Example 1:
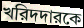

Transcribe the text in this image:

খরিদদারকে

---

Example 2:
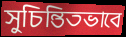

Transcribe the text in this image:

সুচিন্তিতভাবে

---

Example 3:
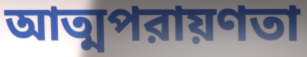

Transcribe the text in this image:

আত্মপরায়ণতা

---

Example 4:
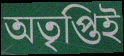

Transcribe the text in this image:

অতৃপ্তিই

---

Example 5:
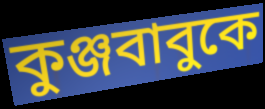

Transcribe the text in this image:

কুঞ্জবাবুকে